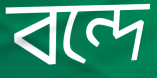
বন্দে